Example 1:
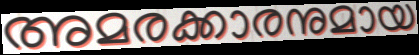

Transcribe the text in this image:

അമരക്കാരനുമായ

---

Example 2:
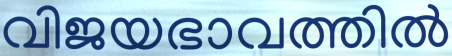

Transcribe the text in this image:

വിജയഭാവത്തിൽ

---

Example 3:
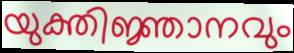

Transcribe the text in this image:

യുക്തിജ്ഞാനവും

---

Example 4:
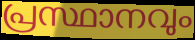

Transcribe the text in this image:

പ്രസ്ഥാനവും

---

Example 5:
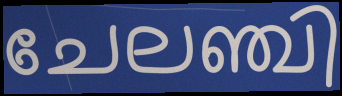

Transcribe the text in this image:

ചേലഞ്ചി